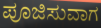
ಪೂಜಿಸುವಾಗ